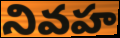
నివహ